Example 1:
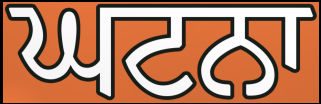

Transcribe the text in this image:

ਘਟਨਾ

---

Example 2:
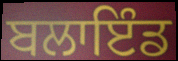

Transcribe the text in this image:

ਬਲਾਇੰਡ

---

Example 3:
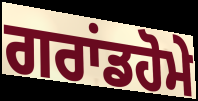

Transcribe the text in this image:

ਗਰਾਂਡਹੋਮੇ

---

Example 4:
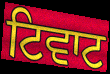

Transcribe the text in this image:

ਟਿਵਾਟ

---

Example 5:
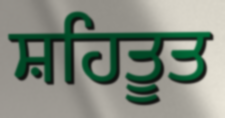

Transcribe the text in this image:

ਸ਼ਹਿਤੂਤ